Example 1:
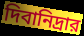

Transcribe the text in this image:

দিবানিদ্রার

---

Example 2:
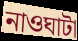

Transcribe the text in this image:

নাওঘাটা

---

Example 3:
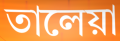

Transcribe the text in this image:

তালেয়া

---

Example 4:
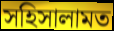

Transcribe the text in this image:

সহিসালামত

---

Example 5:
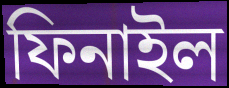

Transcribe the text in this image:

ফিনাইল